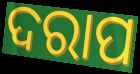
ଦରାପ